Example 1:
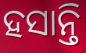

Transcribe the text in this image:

ହସାନ୍ତି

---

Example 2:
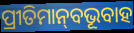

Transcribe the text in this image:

ପ୍ରୀତିମାନ୍‌ବଭୂବାହ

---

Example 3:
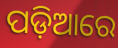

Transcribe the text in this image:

ପଡ଼ିଆରେ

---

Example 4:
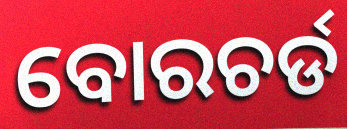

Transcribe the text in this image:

ବୋରଚର୍ଡ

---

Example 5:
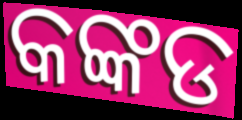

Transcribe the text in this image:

କଙ୍କଡ